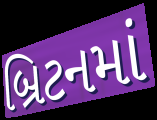
બ્રિટનમાં